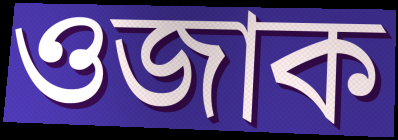
ওজাক